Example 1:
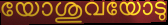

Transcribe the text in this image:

യോശുവയോടു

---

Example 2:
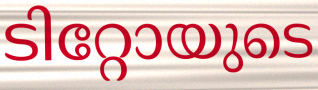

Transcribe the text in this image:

ടിറ്റോയുടെ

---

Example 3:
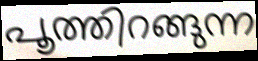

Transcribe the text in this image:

പൂത്തിറങ്ങുന്ന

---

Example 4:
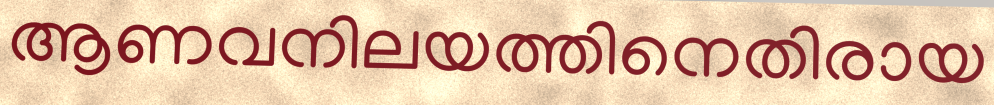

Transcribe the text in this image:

ആണവനിലയത്തിനെതിരായ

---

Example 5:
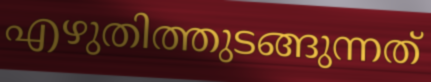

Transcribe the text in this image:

എഴുതിത്തുടങ്ങുന്നത്